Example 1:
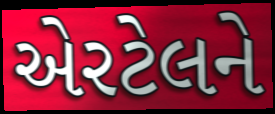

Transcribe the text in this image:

એરટેલને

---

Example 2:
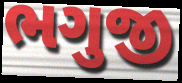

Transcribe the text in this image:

ભગુજી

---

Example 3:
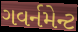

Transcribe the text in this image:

ગવર્નમેન્ટ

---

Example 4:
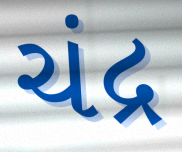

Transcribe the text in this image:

ચંદ્ર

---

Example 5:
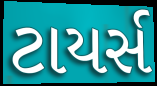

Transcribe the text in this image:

ટાયર્સ